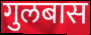
गुलबास